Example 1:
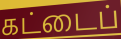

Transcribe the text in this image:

கட்டைப்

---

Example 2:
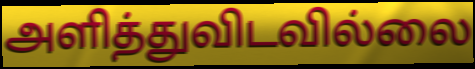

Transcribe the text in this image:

அளித்துவிடவில்லை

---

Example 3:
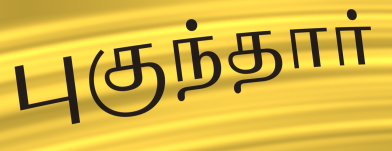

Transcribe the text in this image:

புகுந்தார்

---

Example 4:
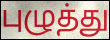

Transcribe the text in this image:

புழுத்து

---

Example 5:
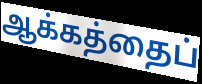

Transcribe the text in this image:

ஆக்கத்தைப்